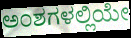
ಅಂಶಗಳಲ್ಲಿಯೇ